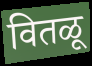
वितळू